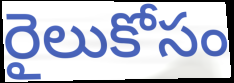
రైలుకోసం